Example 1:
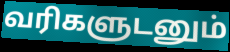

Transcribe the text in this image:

வரிகளுடனும்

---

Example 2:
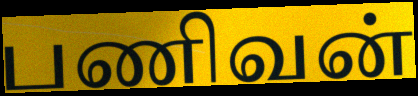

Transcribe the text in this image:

பணிவன்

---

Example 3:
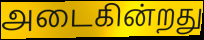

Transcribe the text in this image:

அடைகின்றது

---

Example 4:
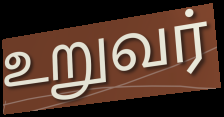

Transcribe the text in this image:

உறுவர்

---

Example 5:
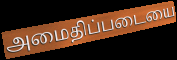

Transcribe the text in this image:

அமைதிப்படையை